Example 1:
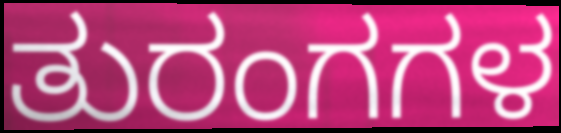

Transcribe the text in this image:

ತುರಂಗಗಳ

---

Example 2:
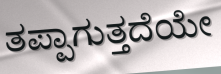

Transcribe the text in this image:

ತಪ್ಪಾಗುತ್ತದೆಯೇ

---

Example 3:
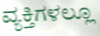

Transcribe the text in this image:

ವ್ಯಕ್ತಿಗಳಲ್ಲೂ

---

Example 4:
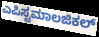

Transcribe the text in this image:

ಎಪಿಸ್ಟಮಾಲಜಿಕಲ್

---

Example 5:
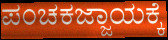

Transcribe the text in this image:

ಪಂಚಕಜ್ಜಾಯಕ್ಕೆ